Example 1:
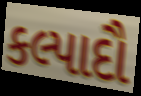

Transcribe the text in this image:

કલ્પાદૌ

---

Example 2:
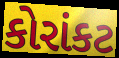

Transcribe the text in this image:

કોરાંકટ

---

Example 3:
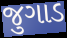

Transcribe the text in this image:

જુગાડ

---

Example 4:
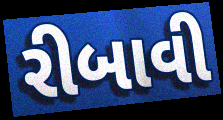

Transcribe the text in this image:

રીબાવી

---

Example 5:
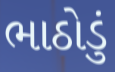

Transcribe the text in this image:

ભાઠોડું